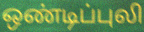
ஒண்டிப்புலி